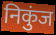
निकुंज